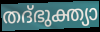
തദ്ഭുക്ത്യാ